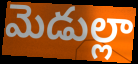
మెడుల్లా